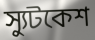
স্যুটকেশ